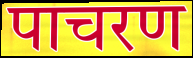
पाचरण